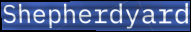
Shepherdyard